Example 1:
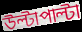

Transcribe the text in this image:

উল্টাপাল্টা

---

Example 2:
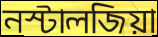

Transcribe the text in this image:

নস্টালজিয়া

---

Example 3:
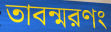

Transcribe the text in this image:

তাবন্মরণং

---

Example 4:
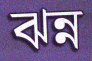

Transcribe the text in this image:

ঝন্ন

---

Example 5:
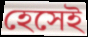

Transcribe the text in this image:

হেসেই